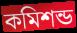
কমিশন্ড